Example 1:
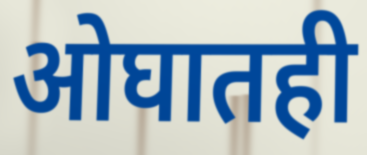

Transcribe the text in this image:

ओघातही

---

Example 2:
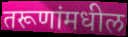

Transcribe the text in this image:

तरूणांमधील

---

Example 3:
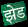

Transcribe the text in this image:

झेड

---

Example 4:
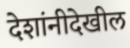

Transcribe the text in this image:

देशांनीदेखील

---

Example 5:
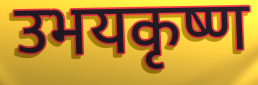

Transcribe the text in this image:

उभयकृष्ण